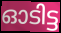
ഓടിട്ട